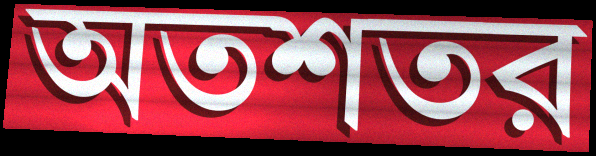
অতশতর